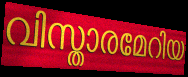
വിസ്താരമേറിയ